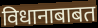
विधानाबाबत